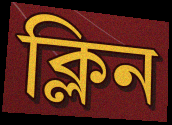
ক্লিন